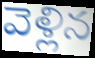
వెళ్లిన